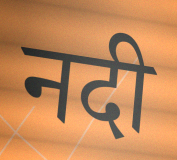
नदी